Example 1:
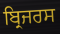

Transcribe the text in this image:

ਬ੍ਰਿਜਰਸ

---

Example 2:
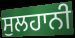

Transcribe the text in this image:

ਸੁਲਹਾਨੀ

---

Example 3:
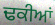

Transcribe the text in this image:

ਢਕੀਆਂ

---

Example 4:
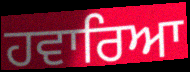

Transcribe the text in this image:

ਹਵਾਰਿਆ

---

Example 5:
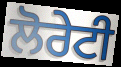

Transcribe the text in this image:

ਲੋਰੇਟੀ